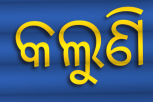
କଲୁଣି